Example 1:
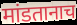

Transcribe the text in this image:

मांडतानाच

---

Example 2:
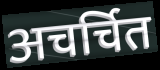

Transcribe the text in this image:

अचर्चित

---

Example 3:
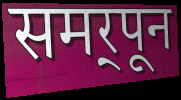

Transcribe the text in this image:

समर्पून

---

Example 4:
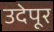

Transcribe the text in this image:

उदेपूर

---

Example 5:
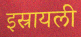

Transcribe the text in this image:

इस्रायली